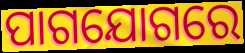
ପାଗଯୋଗରେ